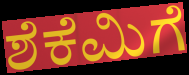
ಶೆಕೆಮಿಗೆ